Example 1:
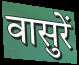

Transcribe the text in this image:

वासुरें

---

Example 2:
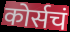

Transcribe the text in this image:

कोर्सचं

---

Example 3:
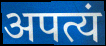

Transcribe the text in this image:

अपत्यं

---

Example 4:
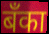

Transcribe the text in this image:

बँका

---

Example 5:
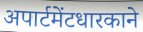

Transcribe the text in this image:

अपार्टमेंटधारकाने